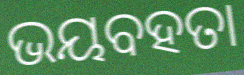
ଭୟବହତା